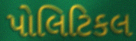
પોલિટિકલ